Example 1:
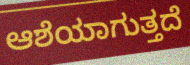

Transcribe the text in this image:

ಆಶೆಯಾಗುತ್ತದೆ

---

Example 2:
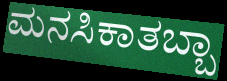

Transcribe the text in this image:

ಮನಸಿಕಾತಬ್ಬಾ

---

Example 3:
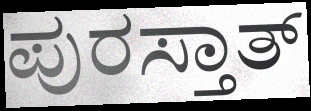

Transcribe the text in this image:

ಪುರಸ್ತಾತ್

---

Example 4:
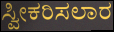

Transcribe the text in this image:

ಸ್ವೀಕರಿಸಲಾರ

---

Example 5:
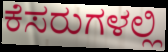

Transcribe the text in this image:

ಕೆಸರುಗಳಲ್ಲಿ